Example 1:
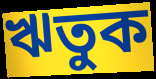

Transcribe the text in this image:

ঋতুক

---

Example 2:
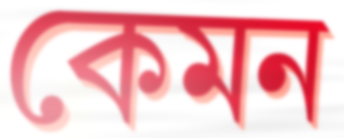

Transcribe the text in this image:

কেমন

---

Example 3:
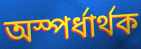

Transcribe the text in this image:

অস্পৰ্ধাৰ্থক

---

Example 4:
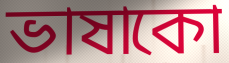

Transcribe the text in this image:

ভাষাকো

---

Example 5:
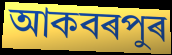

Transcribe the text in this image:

আকবৰপুৰ